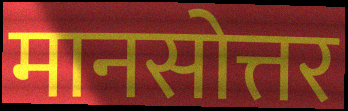
मानसोत्तर